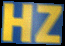
HZ